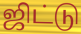
ஜிட்டு